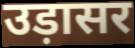
उड़ासर